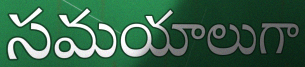
సమయాలుగా